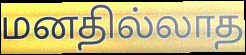
மனதில்லாத